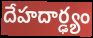
దేహదార్ఢ్యం